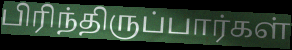
பிரிந்திருப்பார்கள்